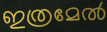
ഇത്രമേൽ